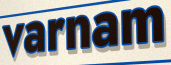
varnam